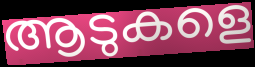
ആടുകളെ